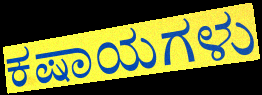
ಕಷಾಯಗಳು